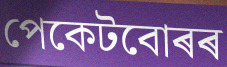
পেকেটবোৰৰ